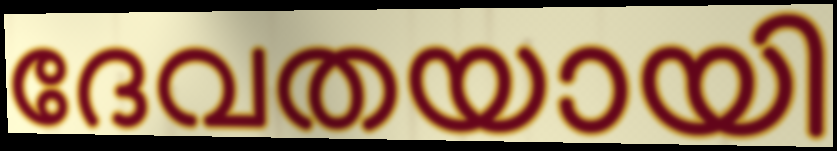
ദേവതയായി